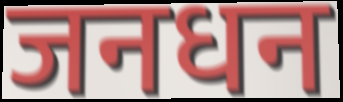
जनधन